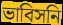
ভাবিসনি